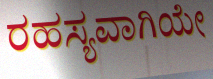
ರಹಸ್ಯವಾಗಿಯೇ